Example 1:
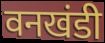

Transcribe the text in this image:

वनखंडी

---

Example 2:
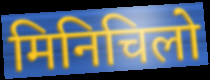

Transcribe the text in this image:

मिनिचिलो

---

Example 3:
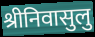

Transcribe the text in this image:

श्रीनिवासुलु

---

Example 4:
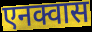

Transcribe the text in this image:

एनक्वास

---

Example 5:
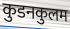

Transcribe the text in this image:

कुडनकुलम